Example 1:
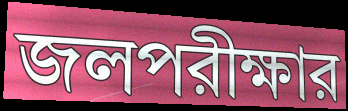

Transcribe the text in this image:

জলপরীক্ষার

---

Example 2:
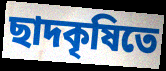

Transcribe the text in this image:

ছাদকৃষিতে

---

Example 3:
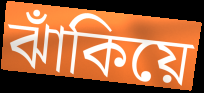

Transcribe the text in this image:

ঝাঁকিয়ে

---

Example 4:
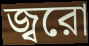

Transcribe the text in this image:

জ্বরো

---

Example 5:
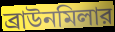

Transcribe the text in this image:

ব্রাউনমিলার